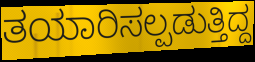
ತಯಾರಿಸಲ್ಪಡುತ್ತಿದ್ದ